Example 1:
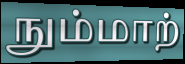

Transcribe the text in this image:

நும்மாற்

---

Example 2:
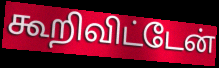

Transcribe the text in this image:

கூறிவிட்டேன்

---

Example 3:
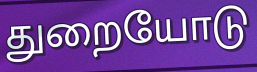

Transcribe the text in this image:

துறையோடு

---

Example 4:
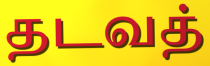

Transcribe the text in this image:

தடவத்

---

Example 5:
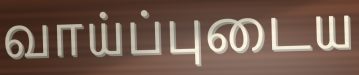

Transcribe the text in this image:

வாய்ப்புடைய